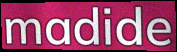
madide